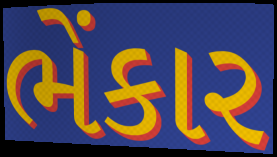
ભેંકાર